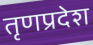
तृणप्रदेश